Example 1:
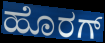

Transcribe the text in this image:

ಹೊರಗ್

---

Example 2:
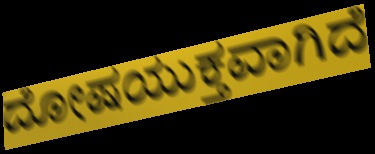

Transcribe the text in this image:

ದೋಷಯುಕ್ತವಾಗಿದೆ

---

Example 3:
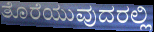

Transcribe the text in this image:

ತೊರೆಯುವುದರಲ್ಲಿ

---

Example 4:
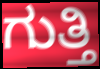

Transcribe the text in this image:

ಗುತ್ತಿ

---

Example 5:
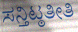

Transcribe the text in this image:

ಸನ್ತಿಟ್ಠತೀತಿ